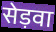
सेड़वा